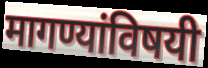
मागण्यांविषयी